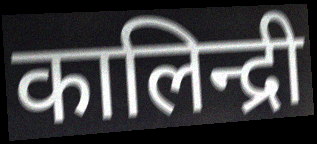
कालिन्द्री